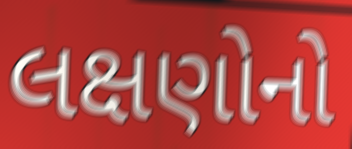
લક્ષણોનો